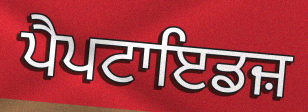
ਪੈਪਟਾਇਡਜ਼